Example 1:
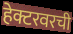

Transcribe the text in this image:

हेक्टरवरची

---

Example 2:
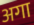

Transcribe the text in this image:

अगा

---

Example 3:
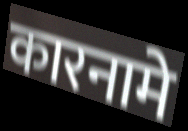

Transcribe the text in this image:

कारनामे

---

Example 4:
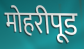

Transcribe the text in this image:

मोहरीपूड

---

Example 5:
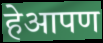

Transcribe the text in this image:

हेआपण